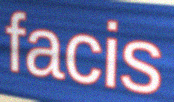
facis